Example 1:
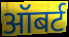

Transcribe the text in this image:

ऑबर्ट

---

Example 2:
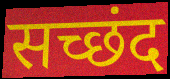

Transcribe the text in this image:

सच्छंद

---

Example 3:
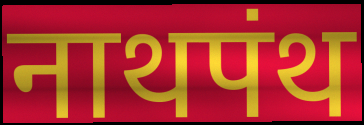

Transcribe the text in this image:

नाथपंथ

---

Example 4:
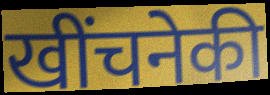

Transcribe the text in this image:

खींचनेकी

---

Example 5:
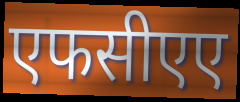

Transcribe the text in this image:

एफसीएए